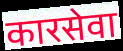
कारसेवा